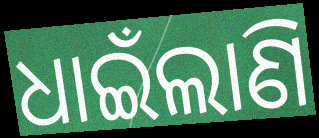
ଧାଇଁଲାଣି